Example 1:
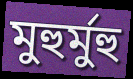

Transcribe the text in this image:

মুহুর্মুহু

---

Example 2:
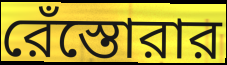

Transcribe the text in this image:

রেঁস্তোরার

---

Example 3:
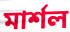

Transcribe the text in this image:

মার্শল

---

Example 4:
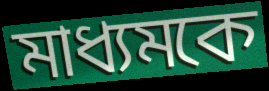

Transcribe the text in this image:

মাধ্যমকে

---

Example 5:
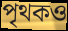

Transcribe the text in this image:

পৃথকও